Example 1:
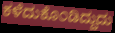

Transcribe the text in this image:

ಕಳೆದುಕೊಂಡಿದ್ದುದು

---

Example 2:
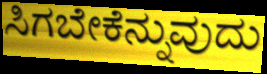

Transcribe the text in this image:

ಸಿಗಬೇಕೆನ್ನುವುದು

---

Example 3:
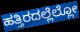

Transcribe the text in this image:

ಹತ್ತಿರದಲ್ಲೆಲ್ಲೋ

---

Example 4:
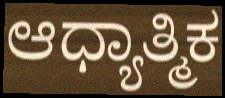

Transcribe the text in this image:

ಆಧ್ಯಾತ್ಮಿಕ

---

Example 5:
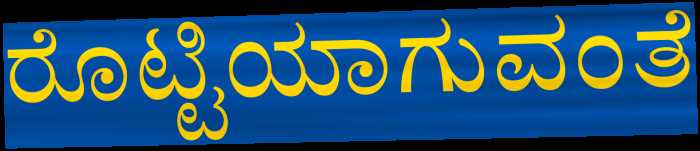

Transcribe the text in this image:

ರೊಟ್ಟಿಯಾಗುವಂತೆ